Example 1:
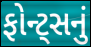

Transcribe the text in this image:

ફોન્ટ્સનું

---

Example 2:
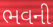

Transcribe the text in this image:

ભવની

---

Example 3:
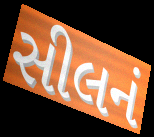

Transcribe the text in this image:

સીલનં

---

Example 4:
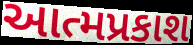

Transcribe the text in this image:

આત્મપ્રકાશ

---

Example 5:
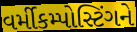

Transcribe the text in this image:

વર્મીકમ્પોસ્ટિંગને